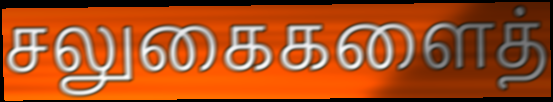
சலுகைகளைத்